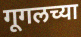
गूगलच्या